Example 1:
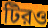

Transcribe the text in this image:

টিরও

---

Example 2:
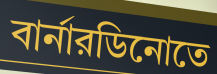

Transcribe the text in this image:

বার্নারডিনোতে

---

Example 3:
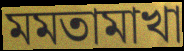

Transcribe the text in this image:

মমতামাখা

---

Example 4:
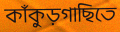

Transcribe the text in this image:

কাঁকুড়গাছিতে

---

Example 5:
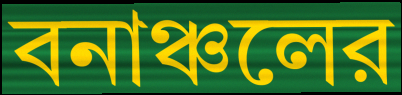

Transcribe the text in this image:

বনাঞ্চলের